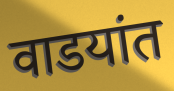
वाडयांत